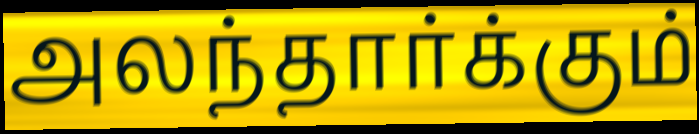
அலந்தார்க்கும்